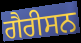
ਗੈਰੀਸਨ